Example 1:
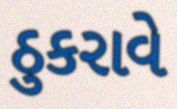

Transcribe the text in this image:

ઠુકરાવે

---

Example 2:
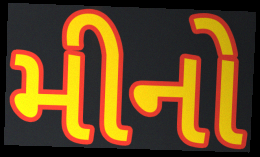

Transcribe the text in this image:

મીનો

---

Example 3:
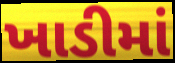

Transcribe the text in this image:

ખાડીમાં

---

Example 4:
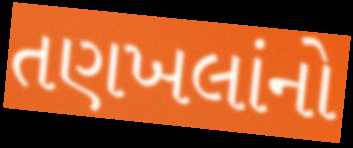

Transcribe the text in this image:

તણખલાંનો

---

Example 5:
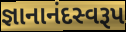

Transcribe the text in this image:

જ્ઞાનાનંદસ્વરૂપ